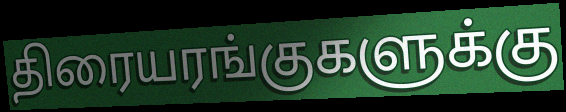
திரையரங்குகளுக்கு